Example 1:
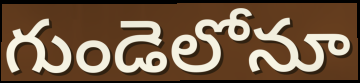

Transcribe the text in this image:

గుండెలోనూ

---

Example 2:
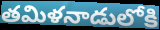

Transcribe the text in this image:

తమిళనాడులోకి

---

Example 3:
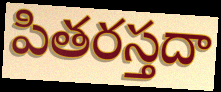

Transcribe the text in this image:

పితరస్తదా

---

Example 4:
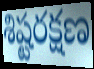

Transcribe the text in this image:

శిష్టరక్షణ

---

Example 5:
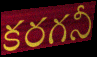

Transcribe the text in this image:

కరగనీ